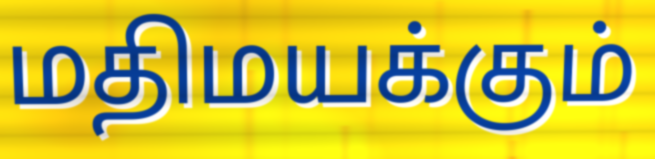
மதிமயக்கும்